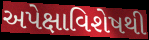
અપેક્ષાવિશેષથી